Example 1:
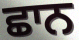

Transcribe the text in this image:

ਛਾਨ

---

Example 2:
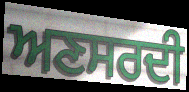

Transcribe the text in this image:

ਅਣਸਰਦੀ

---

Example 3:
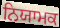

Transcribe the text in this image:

ਨਿਯਾਮਕ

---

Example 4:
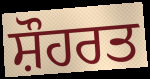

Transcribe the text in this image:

ਸ਼ੌਹਰਤ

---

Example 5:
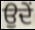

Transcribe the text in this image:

ਉਦੇਂ